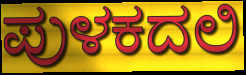
ಪುಳಕದಲಿ